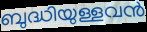
ബുദ്ധിയുള്ളവൻ